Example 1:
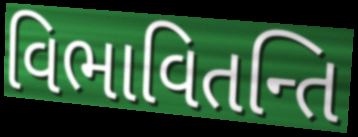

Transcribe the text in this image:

વિભાવિતન્તિ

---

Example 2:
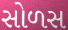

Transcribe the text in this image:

સોળસ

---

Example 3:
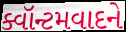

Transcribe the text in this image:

ક્વૉન્ટમવાદને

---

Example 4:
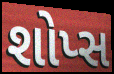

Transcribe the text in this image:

શોપ્સ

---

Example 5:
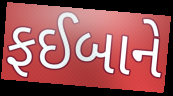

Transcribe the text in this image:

ફઈબાને